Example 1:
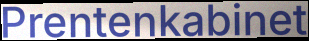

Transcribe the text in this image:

Prentenkabinet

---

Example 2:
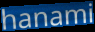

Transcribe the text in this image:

hanami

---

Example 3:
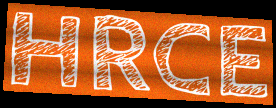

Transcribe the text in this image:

HRCE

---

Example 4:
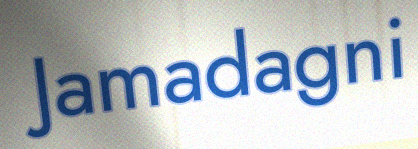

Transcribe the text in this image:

Jamadagni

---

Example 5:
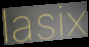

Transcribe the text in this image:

lasix